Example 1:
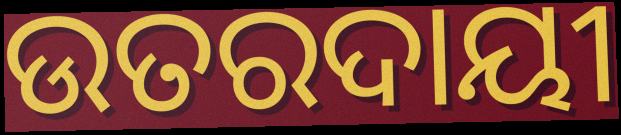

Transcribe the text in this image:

ଉତରଦାୟୀ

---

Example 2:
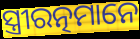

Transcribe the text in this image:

ସ୍ତ୍ରୀରତ୍ନମାନେ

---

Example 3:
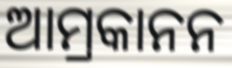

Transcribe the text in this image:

ଆମ୍ରକାନନ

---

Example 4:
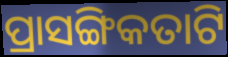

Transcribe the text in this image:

ପ୍ରାସଙ୍ଗିକତାଟି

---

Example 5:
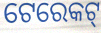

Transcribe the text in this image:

ଟେରେକଟ୍